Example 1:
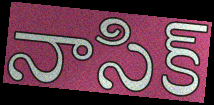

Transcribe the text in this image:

నాసిక్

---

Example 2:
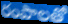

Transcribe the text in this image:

రంపాలతో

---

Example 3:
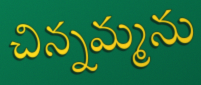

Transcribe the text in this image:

చిన్నమ్మను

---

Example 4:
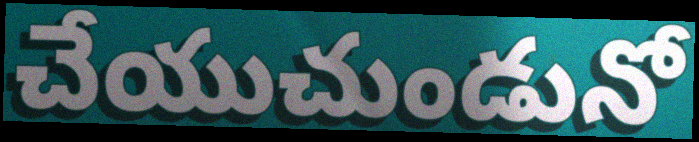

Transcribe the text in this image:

చేయుచుండునో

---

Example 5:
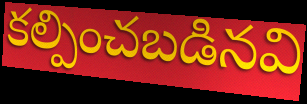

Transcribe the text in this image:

కల్పించబడినవి